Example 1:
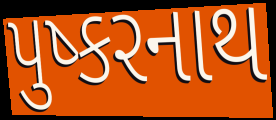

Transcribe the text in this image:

પુષ્કરનાથ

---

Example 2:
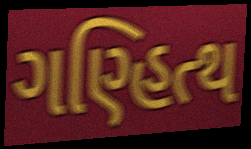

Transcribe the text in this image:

ગણ્હિત્થ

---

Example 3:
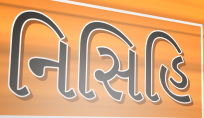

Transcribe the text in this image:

નિસિહિ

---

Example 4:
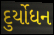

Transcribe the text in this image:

દુર્યોધન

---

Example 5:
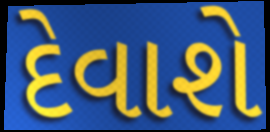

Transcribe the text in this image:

દેવાશે